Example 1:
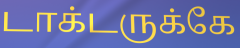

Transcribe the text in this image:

டாக்டருக்கே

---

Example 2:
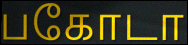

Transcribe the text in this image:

பகோடா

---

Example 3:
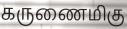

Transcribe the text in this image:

கருணைமிகு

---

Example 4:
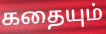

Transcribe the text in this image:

கதையும்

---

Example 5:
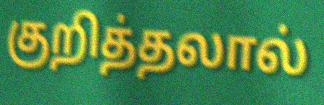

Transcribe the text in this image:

குறித்தலால்